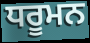
ਧਰੂਮਨ